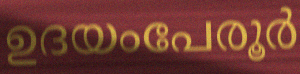
ഉദയംപേരൂർ